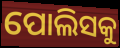
ପୋଲିସକୁ